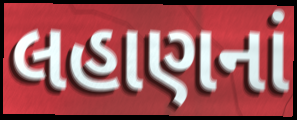
લહાણનાં